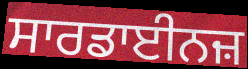
ਸਾਰਡਾਈਨਜ਼